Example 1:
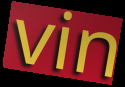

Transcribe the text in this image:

vin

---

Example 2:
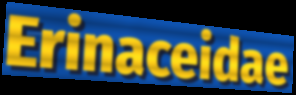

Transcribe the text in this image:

Erinaceidae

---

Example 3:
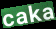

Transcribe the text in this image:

caka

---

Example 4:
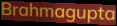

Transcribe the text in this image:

Brahmagupta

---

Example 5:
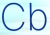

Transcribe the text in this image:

Cb